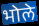
भोले